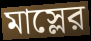
মাস্লের